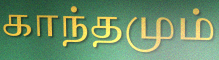
காந்தமும்